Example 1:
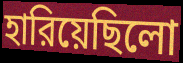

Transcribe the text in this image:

হারিয়েছিলো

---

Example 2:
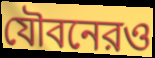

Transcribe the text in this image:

যৌবনেরও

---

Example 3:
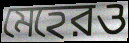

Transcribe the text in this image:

মেহেরও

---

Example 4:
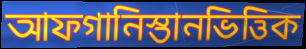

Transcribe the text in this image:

আফগানিস্তানভিত্তিক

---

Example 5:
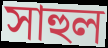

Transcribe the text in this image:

সাহুল